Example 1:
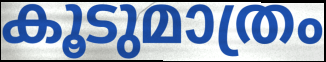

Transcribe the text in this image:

കൂടുമാത്രം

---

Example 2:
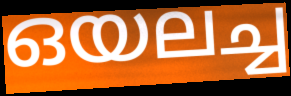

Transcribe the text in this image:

ഒയലച്ച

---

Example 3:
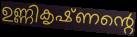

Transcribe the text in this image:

ഉണ്ണികൃഷ്‌ണന്റെ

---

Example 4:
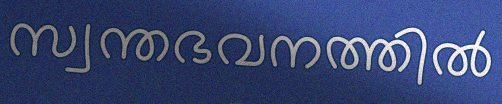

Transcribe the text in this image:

സ്വന്തഭവനത്തിൽ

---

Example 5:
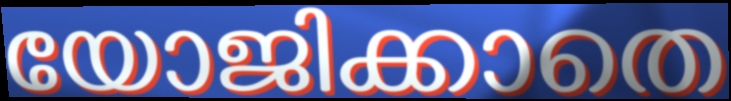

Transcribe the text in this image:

യോജിക്കാതെ